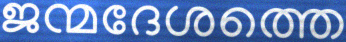
ജന്മദേശത്തെ